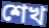
শেখ